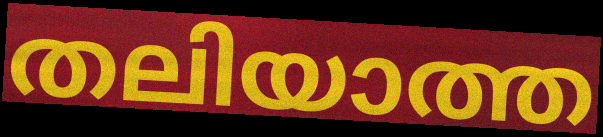
തലിയാത്ത